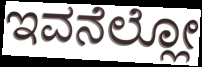
ಇವನೆಲ್ಲೋ